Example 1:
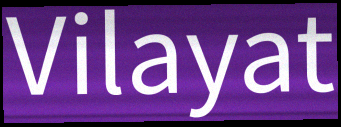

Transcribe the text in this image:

Vilayat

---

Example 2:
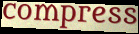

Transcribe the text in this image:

compress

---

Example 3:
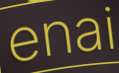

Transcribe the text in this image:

enai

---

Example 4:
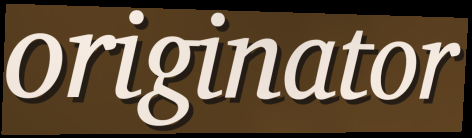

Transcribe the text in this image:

originator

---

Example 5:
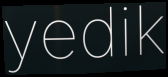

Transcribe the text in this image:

yedik